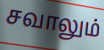
சவாலும்